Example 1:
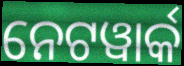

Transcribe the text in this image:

ନେଟୱାର୍କ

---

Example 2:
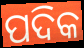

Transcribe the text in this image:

ପଦିକ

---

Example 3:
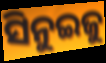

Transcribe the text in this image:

ସିନୁଇଜୁ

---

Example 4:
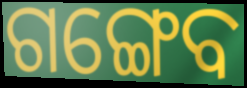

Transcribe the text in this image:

ଗଙ୍ଗେବ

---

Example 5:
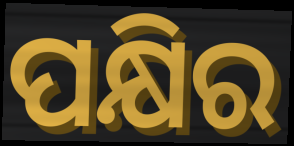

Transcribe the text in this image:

ପକ୍ଷିର